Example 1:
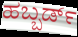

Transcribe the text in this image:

ಹಬ್ಬರ್ಡ್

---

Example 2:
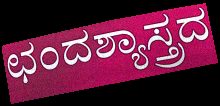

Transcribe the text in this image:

ಛಂದಶ್ಯಾಸ್ತ್ರದ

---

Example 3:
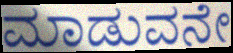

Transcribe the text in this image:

ಮಾಡುವನೇ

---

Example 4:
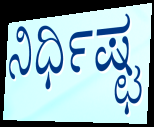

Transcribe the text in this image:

ನಿರ್ಧಿಷ್ಟ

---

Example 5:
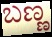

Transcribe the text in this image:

ಬಣ್ಣ